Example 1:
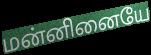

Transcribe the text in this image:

மன்னினையே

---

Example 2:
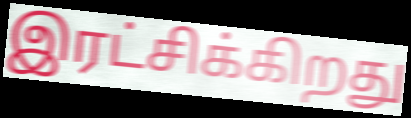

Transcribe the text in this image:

இரட்சிக்கிறது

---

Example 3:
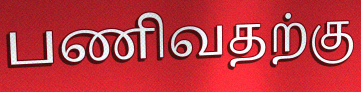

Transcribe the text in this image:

பணிவதற்கு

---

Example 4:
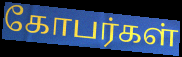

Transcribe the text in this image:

கோபர்கள்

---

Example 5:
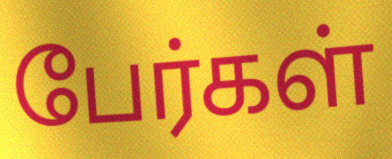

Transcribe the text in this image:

பேர்கள்